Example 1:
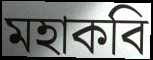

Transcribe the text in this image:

মহাকবি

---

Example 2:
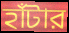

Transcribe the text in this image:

হাঁটার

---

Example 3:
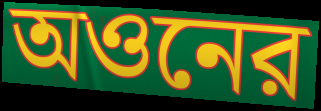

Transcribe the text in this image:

অওনের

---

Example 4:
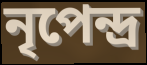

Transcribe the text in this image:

নৃপেন্দ্র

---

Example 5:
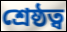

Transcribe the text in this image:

শ্রেষ্ঠত্ব